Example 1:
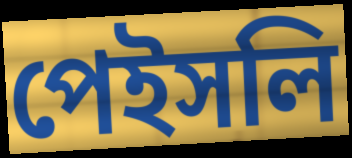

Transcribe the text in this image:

পেইসলি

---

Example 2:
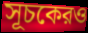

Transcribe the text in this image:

সূচকেরও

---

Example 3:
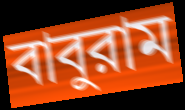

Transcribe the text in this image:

বাবুরাম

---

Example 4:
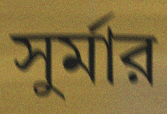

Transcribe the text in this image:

সুর্মার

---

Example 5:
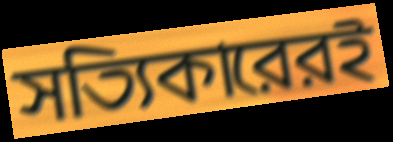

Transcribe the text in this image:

সত্যিকারেরই